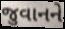
જુવાનને